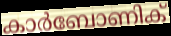
കാർബോണിക്